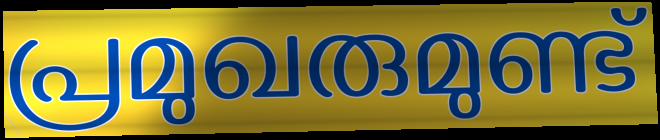
പ്രമുഖരുമുണ്ട്